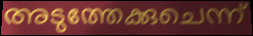
അടുത്തേക്കുചെന്ന്